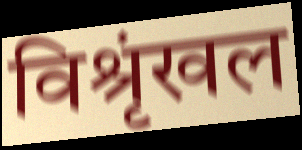
विश्रृंखल